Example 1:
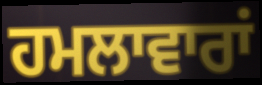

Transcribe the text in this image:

ਹਮਲਾਵਾਰਾਂ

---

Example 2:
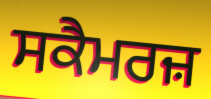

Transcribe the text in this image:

ਸਕੈਮਰਜ਼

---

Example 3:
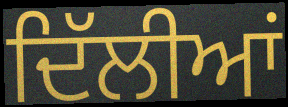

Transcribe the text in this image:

ਦਿੱਲੀਆਂ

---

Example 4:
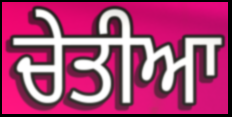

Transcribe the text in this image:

ਚੇਤੀਆ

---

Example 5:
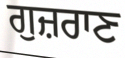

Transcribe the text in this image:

ਗੁਜ਼ਰਾਣ